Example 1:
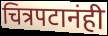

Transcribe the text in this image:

चित्रपटानंही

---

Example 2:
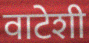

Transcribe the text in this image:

वाटेशी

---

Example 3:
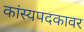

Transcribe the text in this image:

कांस्यपदकावर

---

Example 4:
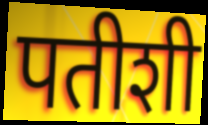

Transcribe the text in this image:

पतीशी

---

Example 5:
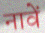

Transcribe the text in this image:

नावें